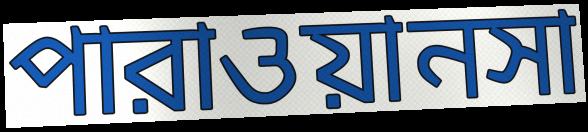
পারাওয়ানসা